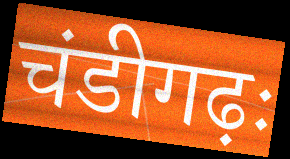
चंडीगढ़ः